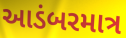
આડંબરમાત્ર